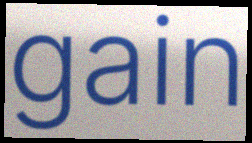
gain